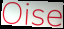
Oise